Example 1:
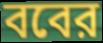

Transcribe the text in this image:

ববের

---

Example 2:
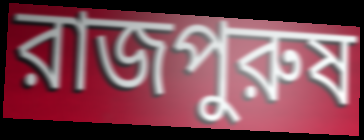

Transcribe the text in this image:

রাজপুরুষ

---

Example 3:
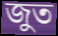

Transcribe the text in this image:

জুত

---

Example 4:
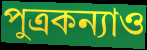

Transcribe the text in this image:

পুত্রকন্যাও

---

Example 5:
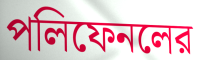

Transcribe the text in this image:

পলিফেনলের